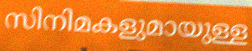
സിനിമകളുമായുള്ള